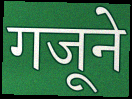
गजूने